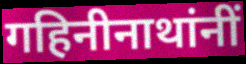
गहिनीनाथांनीं